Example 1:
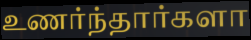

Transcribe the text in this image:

உணர்ந்தார்களா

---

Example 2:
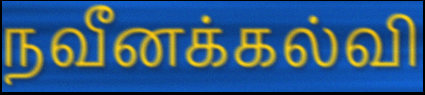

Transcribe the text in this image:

நவீனக்கல்வி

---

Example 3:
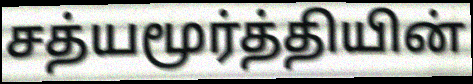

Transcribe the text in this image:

சத்யமூர்த்தியின்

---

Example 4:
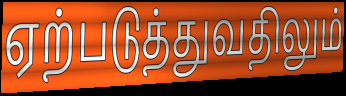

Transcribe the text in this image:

ஏற்படுத்துவதிலும்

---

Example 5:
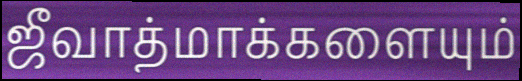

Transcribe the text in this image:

ஜீவாத்மாக்களையும்